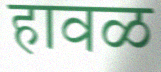
हावळ